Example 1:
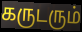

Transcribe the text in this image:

கருடரும்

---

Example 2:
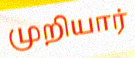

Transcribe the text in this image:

முறியார்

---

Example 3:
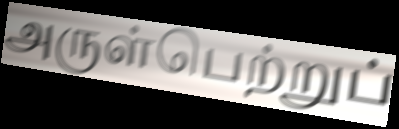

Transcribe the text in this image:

அருள்பெற்றுப்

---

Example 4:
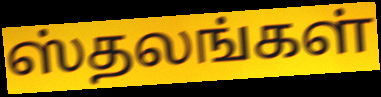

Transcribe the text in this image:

ஸ்தலங்கள்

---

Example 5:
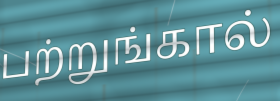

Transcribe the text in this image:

பற்றுங்கால்